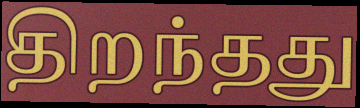
திறந்தது